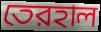
তেরহাল